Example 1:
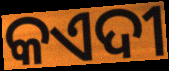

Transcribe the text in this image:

କଏଦୀ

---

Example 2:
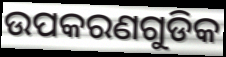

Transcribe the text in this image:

ଉପକରଣଗୁଡିକ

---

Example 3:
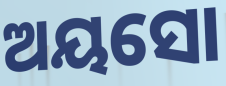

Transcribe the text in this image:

ଅୟସୋ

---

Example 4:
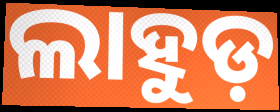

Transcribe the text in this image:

ଲାହୁଡ଼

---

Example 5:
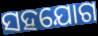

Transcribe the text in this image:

ସହଯୋଗ